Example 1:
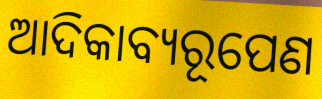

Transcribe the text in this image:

ଆଦିକାବ୍ୟରୂପେଣ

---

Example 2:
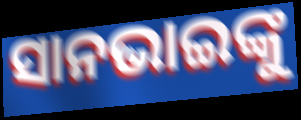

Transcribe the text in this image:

ସାନଭାଇଙ୍କୁ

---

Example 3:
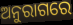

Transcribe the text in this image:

ଅନୁରାଗରେ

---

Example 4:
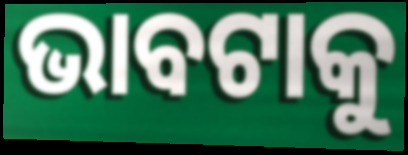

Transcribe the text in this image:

ଭାବଟାକୁ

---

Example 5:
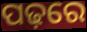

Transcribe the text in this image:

ପଢ଼ରେ